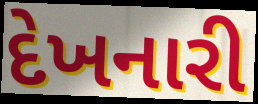
દેખનારી